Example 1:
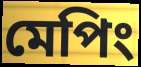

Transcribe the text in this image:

মেপিং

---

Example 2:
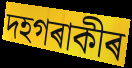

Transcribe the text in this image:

দহগৰাকীৰ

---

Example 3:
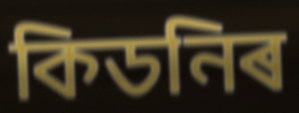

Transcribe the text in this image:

কিডনিৰ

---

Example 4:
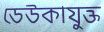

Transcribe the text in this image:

ডেউকাযুক্ত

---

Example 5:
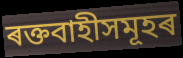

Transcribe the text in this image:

ৰক্তবাহীসমূহৰ